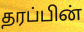
தரப்பின்